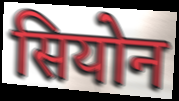
सियोन